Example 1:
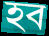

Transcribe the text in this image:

হব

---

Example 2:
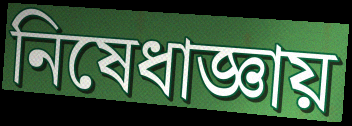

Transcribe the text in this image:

নিষেধাজ্ঞায়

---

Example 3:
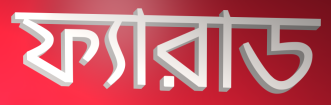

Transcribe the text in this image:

ফ্যারাড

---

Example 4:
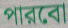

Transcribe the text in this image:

পারবো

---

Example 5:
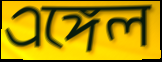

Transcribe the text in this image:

এঙ্গেল